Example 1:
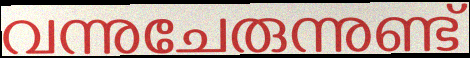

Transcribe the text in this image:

വന്നുചേരുന്നുണ്ട്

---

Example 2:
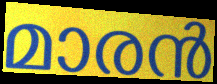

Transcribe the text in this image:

മാരൻ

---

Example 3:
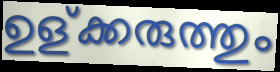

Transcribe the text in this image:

ഉള്ക്കരുത്തും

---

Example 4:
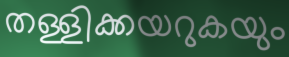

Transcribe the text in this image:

തള്ളിക്കയറുകയും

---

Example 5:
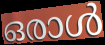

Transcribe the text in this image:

ഒരാൾ